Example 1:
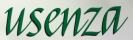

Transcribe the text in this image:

usenza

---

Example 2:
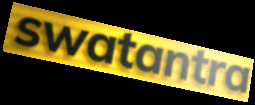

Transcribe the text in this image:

swatantra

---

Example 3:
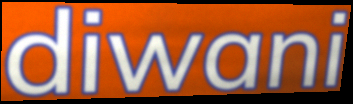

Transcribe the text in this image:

diwani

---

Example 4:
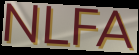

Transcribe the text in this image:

NLFA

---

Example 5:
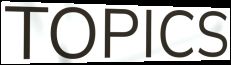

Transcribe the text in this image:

TOPICS